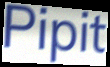
Pipit